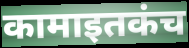
कामाइतकंच